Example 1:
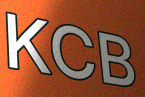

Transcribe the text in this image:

KCB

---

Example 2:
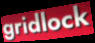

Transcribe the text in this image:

gridlock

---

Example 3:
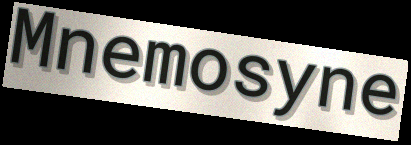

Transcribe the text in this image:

Mnemosyne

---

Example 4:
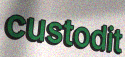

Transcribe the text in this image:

custodit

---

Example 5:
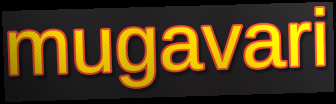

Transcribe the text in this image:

mugavari